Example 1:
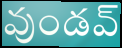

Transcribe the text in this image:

వుండవ్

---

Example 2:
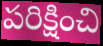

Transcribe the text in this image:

పరిక్షించి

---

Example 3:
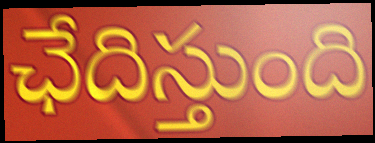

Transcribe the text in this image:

ఛేదిస్తుంది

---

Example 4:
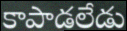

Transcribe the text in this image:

కాపాడలేడు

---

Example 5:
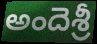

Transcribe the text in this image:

అందెశ్రీ